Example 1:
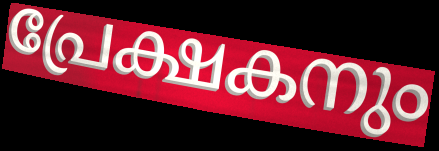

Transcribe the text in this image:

പ്രേക്ഷകനും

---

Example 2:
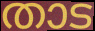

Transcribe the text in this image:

താട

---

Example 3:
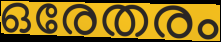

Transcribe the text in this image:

ഒരേതരം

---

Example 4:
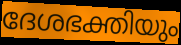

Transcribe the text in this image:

ദേശഭക്തിയും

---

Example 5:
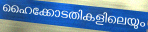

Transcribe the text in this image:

ഹൈക്കോടതികളിലെയും